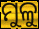
ମୁଳୁ